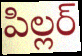
పిల్లర్